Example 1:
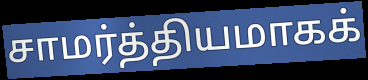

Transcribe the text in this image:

சாமர்த்தியமாகக்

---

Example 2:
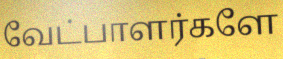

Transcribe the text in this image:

வேட்பாளர்களே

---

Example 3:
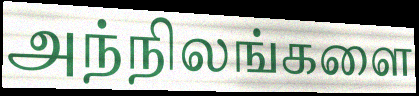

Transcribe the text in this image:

அந்நிலங்களை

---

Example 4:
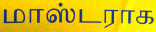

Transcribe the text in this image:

மாஸ்டராக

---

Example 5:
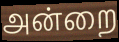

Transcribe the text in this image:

அன்றை